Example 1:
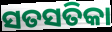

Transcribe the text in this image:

ସତସତିକା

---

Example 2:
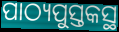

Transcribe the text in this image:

ପାଠ୍ୟପୁସ୍ତକସ୍ଥ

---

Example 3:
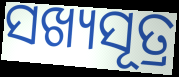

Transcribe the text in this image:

ସଖ୍ୟସୂତ୍ର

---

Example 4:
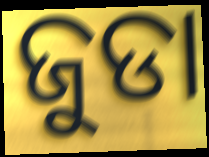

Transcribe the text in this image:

ଜୁଡା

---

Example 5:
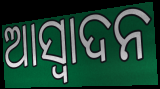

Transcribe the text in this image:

ଆସ୍ଵାଦନ